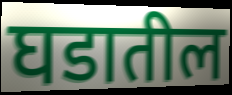
घडातील